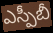
ఎస్పీబీ